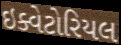
ઇક્વેટોરિયલ